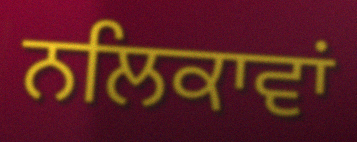
ਨਲਿਕਾਵਾਂ